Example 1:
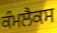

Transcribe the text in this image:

ਕੰਮਲੈਕਸ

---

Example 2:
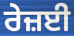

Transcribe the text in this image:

ਰੇਜ਼ਈ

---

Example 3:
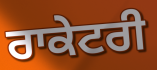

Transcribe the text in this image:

ਰਾਕੇਟਰੀ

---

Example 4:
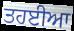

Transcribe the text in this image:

ਤਹਈਆ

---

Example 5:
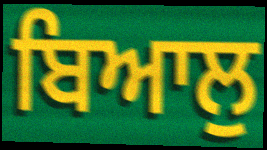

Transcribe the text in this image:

ਬਿਆਲੁ